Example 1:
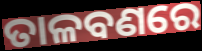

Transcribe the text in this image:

ତାଳବଣରେ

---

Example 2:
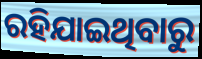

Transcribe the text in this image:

ରହିଯାଇଥିବାରୁ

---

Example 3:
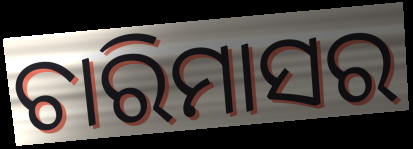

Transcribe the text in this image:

ଚାରିମାସର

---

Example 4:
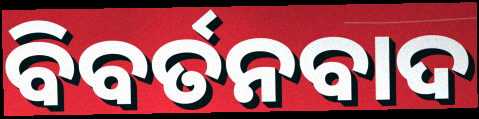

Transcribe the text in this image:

ବିବର୍ତନବାଦ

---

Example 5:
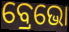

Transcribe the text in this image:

ବ୍ରେଭୋ